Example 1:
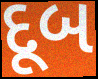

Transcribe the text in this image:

દૂબ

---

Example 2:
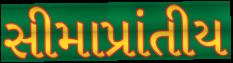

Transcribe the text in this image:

સીમાપ્રાંતીય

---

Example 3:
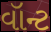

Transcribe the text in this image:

વૉન્ટ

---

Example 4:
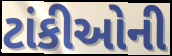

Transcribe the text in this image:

ટાંકીઓની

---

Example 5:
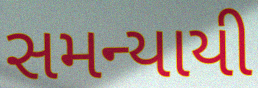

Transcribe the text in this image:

સમન્યાયી